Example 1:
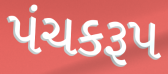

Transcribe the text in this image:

પંચકરૂપ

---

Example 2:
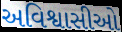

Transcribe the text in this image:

અવિશ્વાસીઓ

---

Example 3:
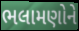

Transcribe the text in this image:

ભલામણોને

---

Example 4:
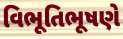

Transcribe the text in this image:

વિભૂતિભૂષણે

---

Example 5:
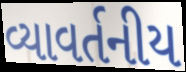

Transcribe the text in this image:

વ્યાવર્તનીય